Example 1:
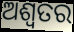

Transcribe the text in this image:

ଅଶ୍ୱତର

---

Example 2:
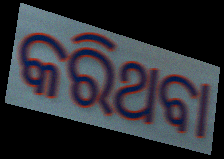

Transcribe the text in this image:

କରିଥବା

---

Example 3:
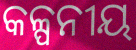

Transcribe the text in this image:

କଳ୍ପନୀୟ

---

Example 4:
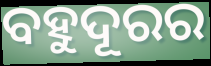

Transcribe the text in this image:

ବହୁଦୂରର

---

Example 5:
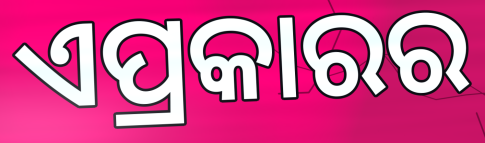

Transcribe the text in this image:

ଏପ୍ରକାରର